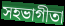
সহভাগীতা